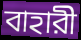
বাহারী